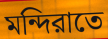
মন্দিরাতে